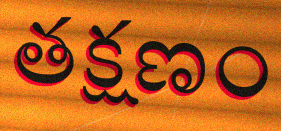
తక్షణం